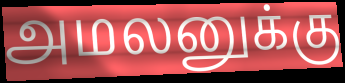
அமலனுக்கு